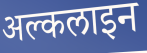
अल्कलाइन